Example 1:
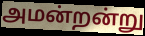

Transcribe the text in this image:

அமன்றன்று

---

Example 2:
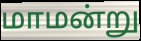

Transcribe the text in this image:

மாமன்று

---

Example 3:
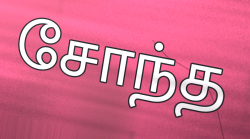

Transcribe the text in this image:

சோந்த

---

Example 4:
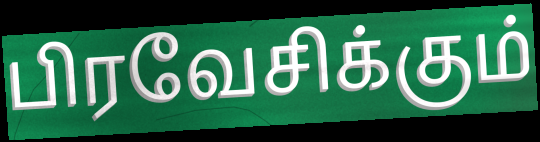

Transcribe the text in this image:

பிரவேசிக்கும்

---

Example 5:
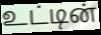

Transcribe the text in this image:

உட்டின்